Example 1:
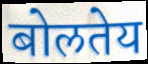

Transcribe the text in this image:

बोलतेय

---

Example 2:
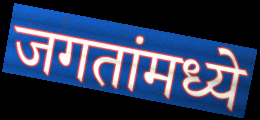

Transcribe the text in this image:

जगतांमध्ये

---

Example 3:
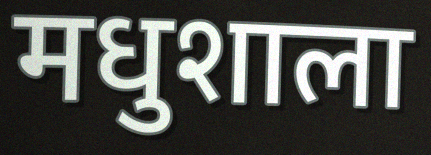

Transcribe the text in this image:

मधुशाला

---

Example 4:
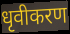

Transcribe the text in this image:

धृवीकरण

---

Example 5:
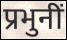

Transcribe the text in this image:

प्रभुनीं